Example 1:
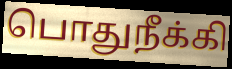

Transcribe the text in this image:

பொதுநீக்கி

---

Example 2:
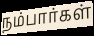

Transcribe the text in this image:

நம்பார்கள்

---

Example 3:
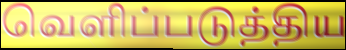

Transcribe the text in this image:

வெளிப்படுத்திய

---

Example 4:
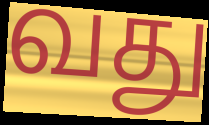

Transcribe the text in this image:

வது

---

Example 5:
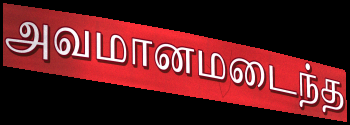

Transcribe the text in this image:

அவமானமடைந்த